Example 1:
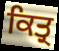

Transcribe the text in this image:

ਕਿਤ੍ਰ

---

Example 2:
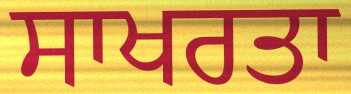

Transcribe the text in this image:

ਸਾਖਰਤਾ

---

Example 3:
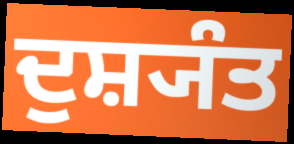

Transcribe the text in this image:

ਦੁਸ਼੍ਯੰਤ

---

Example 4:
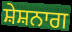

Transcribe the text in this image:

ਸ਼ੇਸ਼ਨਾਗ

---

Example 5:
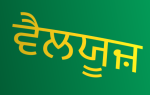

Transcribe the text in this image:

ਵੈਲਯੂਜ਼